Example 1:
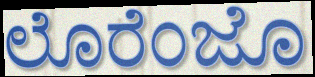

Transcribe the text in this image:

ಲೊರೆಂಜೊ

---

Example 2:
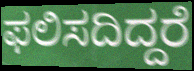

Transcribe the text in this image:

ಫಲಿಸದಿದ್ದರೆ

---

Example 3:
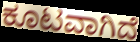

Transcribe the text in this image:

ಕೂಟವಾಗಿದೆ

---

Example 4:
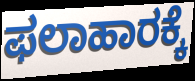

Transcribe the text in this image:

ಫಲಾಹಾರಕ್ಕೆ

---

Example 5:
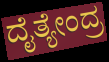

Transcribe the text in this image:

ದೈತ್ಯೇಂದ್ರ